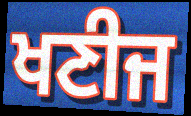
ਖਣੀਜ